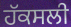
ਹੱਕਸਲੀ